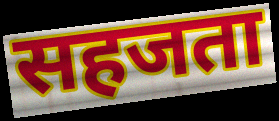
सहजता